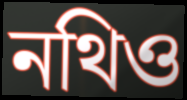
নথিও